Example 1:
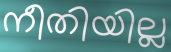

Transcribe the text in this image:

നീതിയില്ല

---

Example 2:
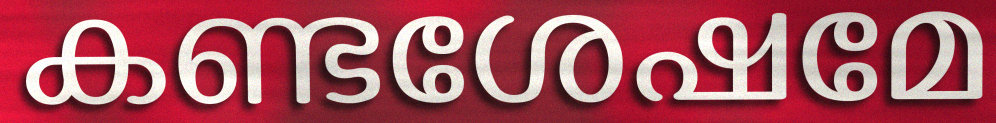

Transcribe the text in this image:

കണ്ടശേഷമേ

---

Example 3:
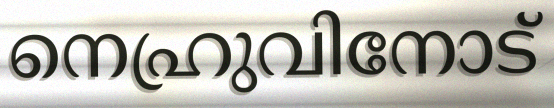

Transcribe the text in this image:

നെഹ്രുവിനോട്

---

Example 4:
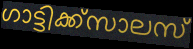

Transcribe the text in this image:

ഗാട്ടിക്ക്സാലസ്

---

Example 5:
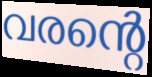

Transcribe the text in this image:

വരന്റെ